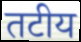
तटीय